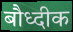
बौध्दीक